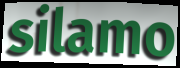
silamo